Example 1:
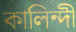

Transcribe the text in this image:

কালিন্দী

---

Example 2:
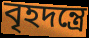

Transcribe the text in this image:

বৃহদন্ত্রে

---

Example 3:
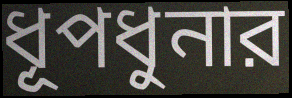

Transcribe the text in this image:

ধূপধুনার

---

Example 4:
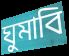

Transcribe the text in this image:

ঘুমাবি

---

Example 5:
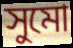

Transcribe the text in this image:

সুমো